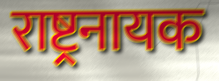
राष्ट्रनायक